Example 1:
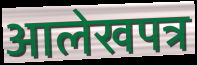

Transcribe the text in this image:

आलेखपत्र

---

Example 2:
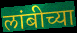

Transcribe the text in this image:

लांबीच्या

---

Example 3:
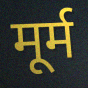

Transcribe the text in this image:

मूर्म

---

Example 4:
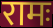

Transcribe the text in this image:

रामः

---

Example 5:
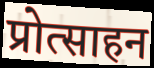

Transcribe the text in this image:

प्रोत्साहन